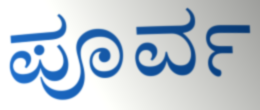
ಪೂರ್ವ